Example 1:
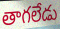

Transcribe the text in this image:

తాగలేడు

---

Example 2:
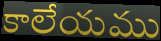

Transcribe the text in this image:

కాలేయము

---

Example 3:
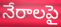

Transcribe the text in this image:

నేరాలపై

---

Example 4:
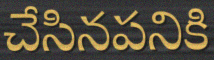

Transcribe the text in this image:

చేసినపనికి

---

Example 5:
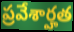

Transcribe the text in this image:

ప్రవేశార్హత